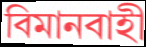
বিমানবাহী